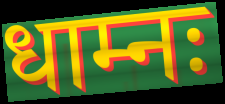
धाम्नः